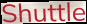
Shuttle